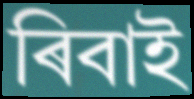
ৰিবাই